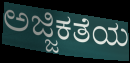
ಅಜ್ಜಿಕತೆಯ